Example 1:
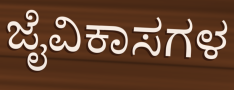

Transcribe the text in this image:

ಜೈವಿಕಾಸಗಳ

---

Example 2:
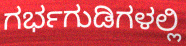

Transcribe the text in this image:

ಗರ್ಭಗುಡಿಗಳಲ್ಲಿ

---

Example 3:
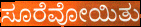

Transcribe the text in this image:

ಸೂರೆವೋಯಿತು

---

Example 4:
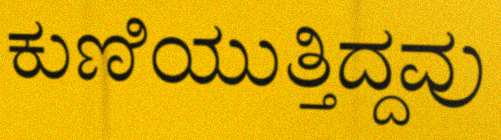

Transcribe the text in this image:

ಕುಣಿಯುತ್ತಿದ್ದವು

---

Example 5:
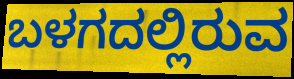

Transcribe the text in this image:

ಬಳಗದಲ್ಲಿರುವ